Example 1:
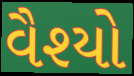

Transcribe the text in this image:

વૈશ્યો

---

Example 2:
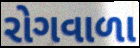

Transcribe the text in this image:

રોગવાળા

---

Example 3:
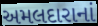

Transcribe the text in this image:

અમલદારાનાં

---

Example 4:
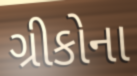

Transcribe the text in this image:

ગ્રીકોના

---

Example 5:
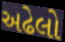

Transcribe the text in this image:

અઢેલો